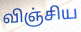
விஞ்சிய